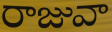
రాజువా